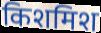
किशमिश